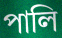
পালি